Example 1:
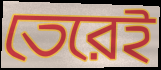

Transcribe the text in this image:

তেরেই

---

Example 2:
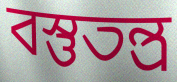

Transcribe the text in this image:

বস্তুতন্ত্র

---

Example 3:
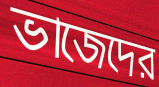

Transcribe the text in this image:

ভাজেদের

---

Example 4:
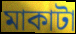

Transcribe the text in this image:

মাকাটা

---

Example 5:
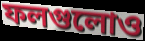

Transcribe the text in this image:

ফলগুলোও